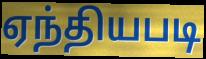
ஏந்தியபடி